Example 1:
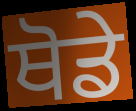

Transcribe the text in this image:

ਥੋਡੇ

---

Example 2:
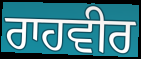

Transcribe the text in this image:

ਰਾਹਵੀਰ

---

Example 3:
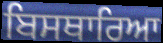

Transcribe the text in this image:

ਬਿਸਥਾਰਿਆ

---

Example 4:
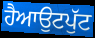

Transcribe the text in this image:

ਹੈਆਉਟਪੁੱਟ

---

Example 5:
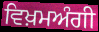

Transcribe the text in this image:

ਵਿਖ਼ਮਅੰਗੀ